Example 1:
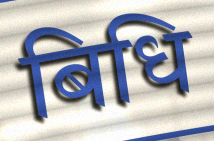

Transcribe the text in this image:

बिधि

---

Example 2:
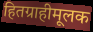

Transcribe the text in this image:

हितग्राहीमूलक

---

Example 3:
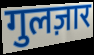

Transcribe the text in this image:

गुलज़ार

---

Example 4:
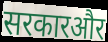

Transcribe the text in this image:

सरकारऔर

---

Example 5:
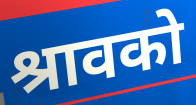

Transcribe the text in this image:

श्रावको